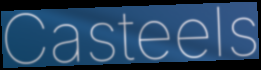
Casteels